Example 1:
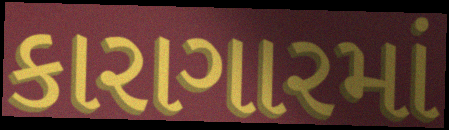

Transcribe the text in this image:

કારાગારમાં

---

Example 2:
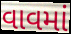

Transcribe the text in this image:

વાવમાં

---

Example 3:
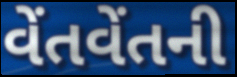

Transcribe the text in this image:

વેંતવેંતની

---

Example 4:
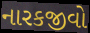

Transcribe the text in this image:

નારકજીવો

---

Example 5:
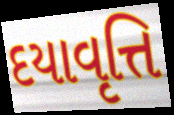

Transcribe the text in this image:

દયાવૃત્તિ